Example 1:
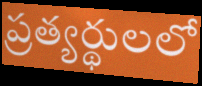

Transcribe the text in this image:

ప్రత్యర్థులలో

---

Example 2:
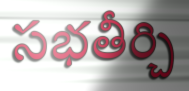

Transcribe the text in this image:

సభతీర్చి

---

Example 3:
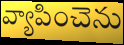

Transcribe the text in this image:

వ్యాపించెను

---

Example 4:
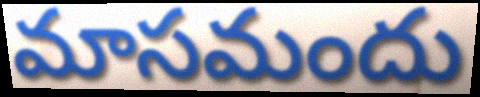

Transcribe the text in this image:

మాసమందు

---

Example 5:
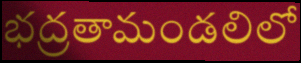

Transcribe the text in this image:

భద్రతామండలిలో